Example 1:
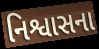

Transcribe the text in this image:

નિશ્વાસના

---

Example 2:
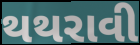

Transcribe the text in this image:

થથરાવી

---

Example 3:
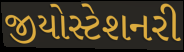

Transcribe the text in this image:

જીયોસ્ટેશનરી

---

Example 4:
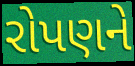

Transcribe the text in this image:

રોપણને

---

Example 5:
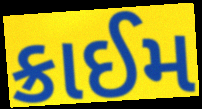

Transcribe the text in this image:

ક્રાઈમ